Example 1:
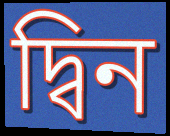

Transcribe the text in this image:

দ্বিন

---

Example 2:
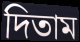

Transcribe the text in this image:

দিতাম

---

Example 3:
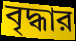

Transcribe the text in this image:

বৃদ্ধার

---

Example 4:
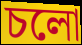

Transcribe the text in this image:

চলো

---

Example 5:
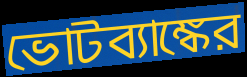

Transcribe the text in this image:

ভোটব্যাঙ্কের